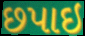
છપાઇ